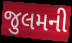
જુલમની